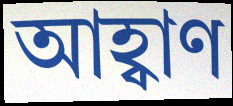
আহ্বাণ